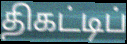
திகட்டிப்